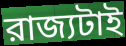
রাজ্যটাই